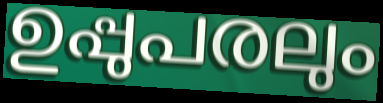
ഉപ്പുപരലും